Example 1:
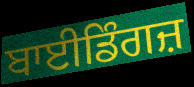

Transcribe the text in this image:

ਬਾਈਡਿੰਗਜ਼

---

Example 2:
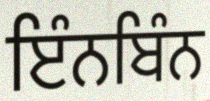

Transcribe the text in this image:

ਇੰਨਬਿੰਨ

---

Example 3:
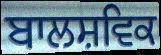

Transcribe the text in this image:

ਬਾਲਸ਼ਵਿਕ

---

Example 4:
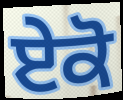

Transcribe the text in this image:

ਏਕੋ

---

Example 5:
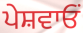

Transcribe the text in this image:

ਪੇਸ਼ਵਾਓਂ